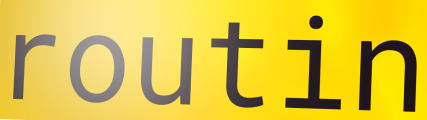
routin